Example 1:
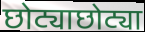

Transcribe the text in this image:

छोट्याछोट्या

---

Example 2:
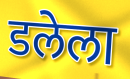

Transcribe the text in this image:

डलेला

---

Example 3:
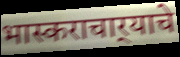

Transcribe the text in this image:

भास्कराचार्याचे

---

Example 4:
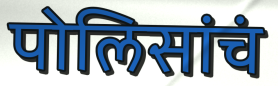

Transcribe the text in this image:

पोलिसांचं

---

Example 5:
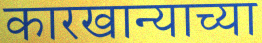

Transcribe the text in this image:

कारखान्याच्या